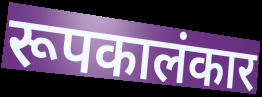
रूपकालंकार